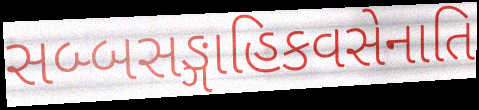
સબ્બસઙ્ગાહિકવસેનાતિ